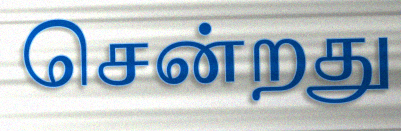
சென்றது